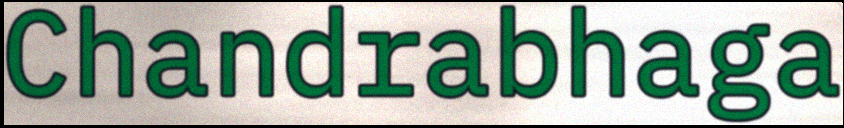
Chandrabhaga